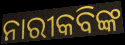
ନାରୀକବିଙ୍କ